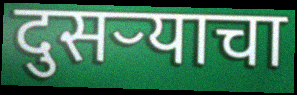
दुसऱ्याचा